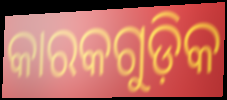
କାରକଗୁଡ଼ିକ